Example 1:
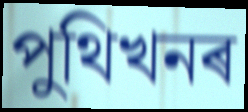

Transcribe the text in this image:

পুথিখনৰ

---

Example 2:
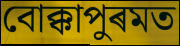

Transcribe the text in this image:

বোক্কাপুৰমত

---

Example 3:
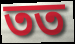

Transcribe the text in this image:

তত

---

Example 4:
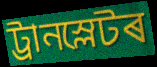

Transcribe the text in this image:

ট্ৰানস্লেটৰ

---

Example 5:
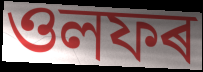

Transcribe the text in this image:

ওলফৰ